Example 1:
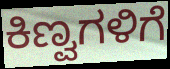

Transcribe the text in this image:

ಕಿಣ್ವಗಳಿಗೆ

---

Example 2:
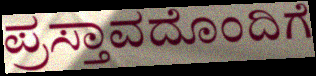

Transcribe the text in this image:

ಪ್ರಸ್ತಾವದೊಂದಿಗೆ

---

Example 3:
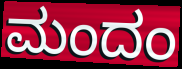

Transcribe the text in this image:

ಮಂದಂ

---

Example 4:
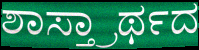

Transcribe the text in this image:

ಶಾಸ್ತ್ರಾರ್ಥದ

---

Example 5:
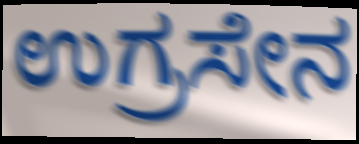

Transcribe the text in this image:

ಉಗ್ರಸೇನ